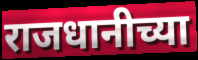
राजधानीच्या